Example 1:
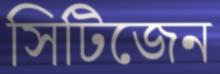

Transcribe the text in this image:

সিটিজেন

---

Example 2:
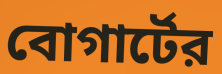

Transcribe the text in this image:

বোগার্টের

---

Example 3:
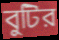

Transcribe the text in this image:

বুটির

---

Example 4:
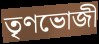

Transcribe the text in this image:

তৃণভোজী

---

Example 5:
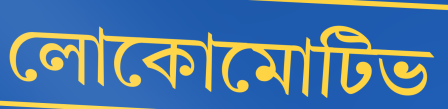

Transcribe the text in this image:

লোকোমোটিভ